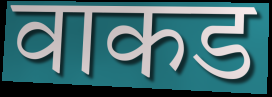
वाकड